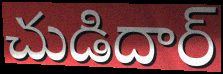
చుడిదార్